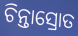
ଚିନ୍ତାସ୍ରୋତ